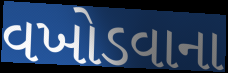
વખોડવાના